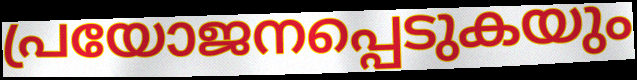
പ്രയോജനപ്പെടുകയും